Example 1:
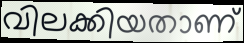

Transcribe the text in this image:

വിലക്കിയതാണ്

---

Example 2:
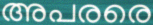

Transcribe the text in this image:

അപരരെ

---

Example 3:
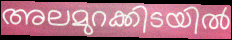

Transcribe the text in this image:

അലമുറക്കിടയിൽ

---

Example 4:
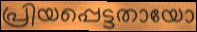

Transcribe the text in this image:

പ്രിയപ്പെട്ടതായോ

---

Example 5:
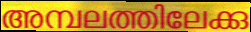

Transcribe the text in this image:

അമ്പലത്തിലേക്കു